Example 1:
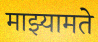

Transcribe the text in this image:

माझ्यामते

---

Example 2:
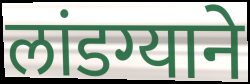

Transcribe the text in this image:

लांडग्याने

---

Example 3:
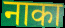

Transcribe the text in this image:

नाका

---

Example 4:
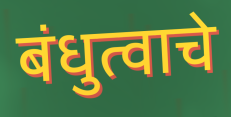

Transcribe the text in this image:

बंधुत्वाचे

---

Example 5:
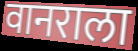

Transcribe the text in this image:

वानराला